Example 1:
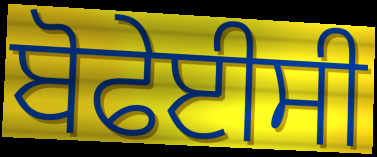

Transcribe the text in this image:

ਬੋਫੇਈਸੀ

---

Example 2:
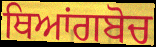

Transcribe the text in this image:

ਥਿਆਂਗਬੋਚ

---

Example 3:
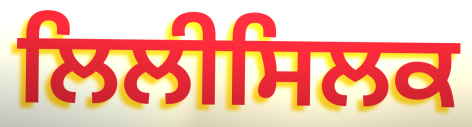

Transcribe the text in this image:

ਲਿਲੀਸਿਲਕ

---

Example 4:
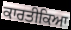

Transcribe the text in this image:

ਕਾਰਤੀਕਿਆ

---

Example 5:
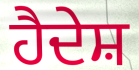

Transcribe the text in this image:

ਹੈਦੇਸ਼